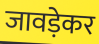
जावड़ेकर